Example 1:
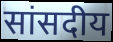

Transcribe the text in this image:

सांसदीय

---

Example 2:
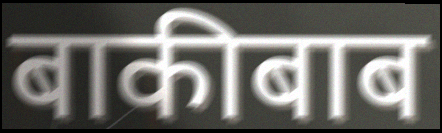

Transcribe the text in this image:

बाकीबाब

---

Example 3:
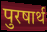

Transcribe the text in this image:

पुरषार्थ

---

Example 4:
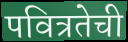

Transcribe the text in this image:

पवित्रतेची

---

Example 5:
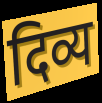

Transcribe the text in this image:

दिव्य